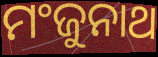
ମଂଜୁନାଥ